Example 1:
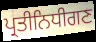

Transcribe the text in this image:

ਪ੍ਰਤੀਨਿਧੀਗਣ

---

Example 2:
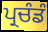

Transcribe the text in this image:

ਪ੍ਰਚੰਡੰ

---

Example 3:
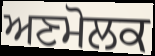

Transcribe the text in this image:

ਅਣਮੋਲਕ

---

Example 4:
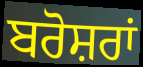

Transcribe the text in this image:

ਬਰੋਸ਼ਰਾਂ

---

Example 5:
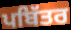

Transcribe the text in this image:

ਪਬਿੱਤਰ